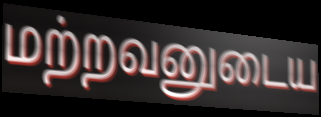
மற்றவனுடைய